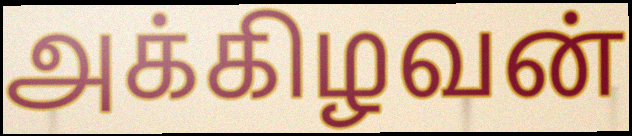
அக்கிழவன்